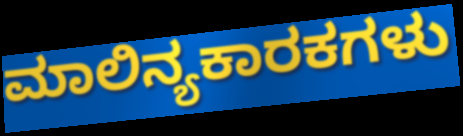
ಮಾಲಿನ್ಯಕಾರಕಗಳು